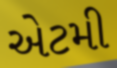
એટમી